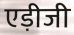
एड़ीजी